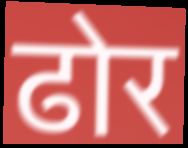
ढोर